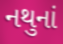
નથુનાં